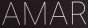
AMAR